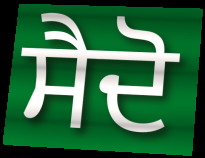
ਸੈਦੋ